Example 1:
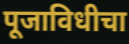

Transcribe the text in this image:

पूजाविधीचा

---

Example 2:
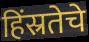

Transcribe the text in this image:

हिंस्रतेचे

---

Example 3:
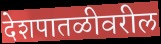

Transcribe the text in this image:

देशपातळीवरील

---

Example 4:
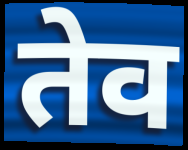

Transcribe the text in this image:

तेव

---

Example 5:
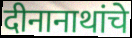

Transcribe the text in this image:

दीनानाथांचे